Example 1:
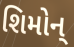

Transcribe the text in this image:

શિમોન્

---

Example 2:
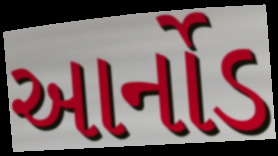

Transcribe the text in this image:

આર્નોડ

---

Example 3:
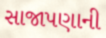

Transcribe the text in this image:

સાજાપણાની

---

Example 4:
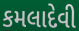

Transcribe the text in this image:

કમલાદેવી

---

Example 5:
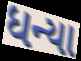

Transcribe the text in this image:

ધન્યા